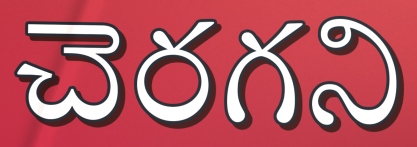
చెరగని